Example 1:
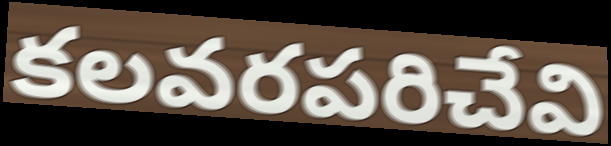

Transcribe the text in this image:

కలవరపరిచేవి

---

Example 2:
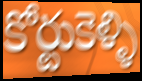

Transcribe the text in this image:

కోర్టుకెళ్ళి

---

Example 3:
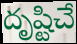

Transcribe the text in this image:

దృష్టిచే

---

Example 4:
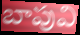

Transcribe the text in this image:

బాపువి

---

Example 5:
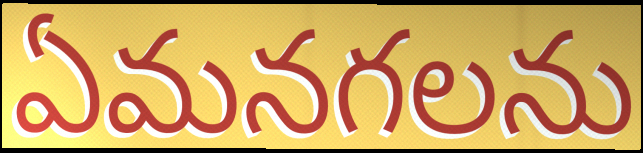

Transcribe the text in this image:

ఏమనగలను